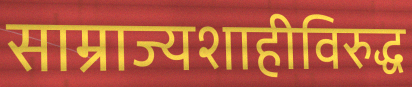
साम्राज्यशाहीविरुद्ध